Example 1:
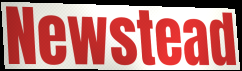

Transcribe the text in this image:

Newstead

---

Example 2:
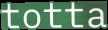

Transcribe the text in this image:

totta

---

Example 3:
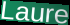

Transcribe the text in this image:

Laure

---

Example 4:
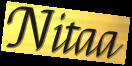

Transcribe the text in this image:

Nitaa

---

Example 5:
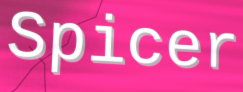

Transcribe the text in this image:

Spicer